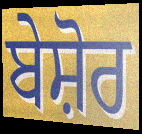
ਬੇਸ਼ੋਰ